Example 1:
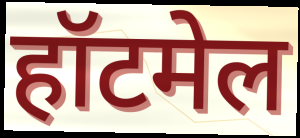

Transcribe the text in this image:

हॉटमेल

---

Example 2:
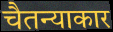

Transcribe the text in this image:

चैतन्याकार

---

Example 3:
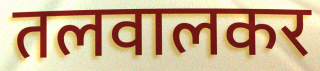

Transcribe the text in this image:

तलवालकर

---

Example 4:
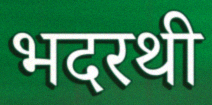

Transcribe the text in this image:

भदरथी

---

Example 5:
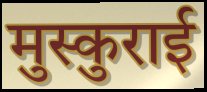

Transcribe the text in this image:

मुस्कुराई